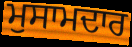
ਮੁਸਾਮਦਾਰ